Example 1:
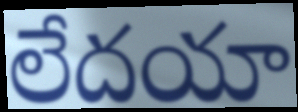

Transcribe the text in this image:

లేదయా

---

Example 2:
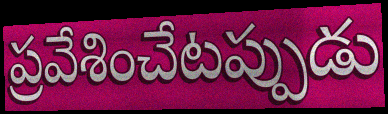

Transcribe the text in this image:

ప్రవేశించేటప్పుడు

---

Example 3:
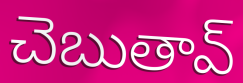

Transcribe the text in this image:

చెబుతావ్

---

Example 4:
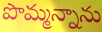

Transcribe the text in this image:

పొమ్మన్నాను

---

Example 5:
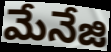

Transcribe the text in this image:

మేనేజి